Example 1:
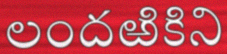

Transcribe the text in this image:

లందఱికిని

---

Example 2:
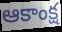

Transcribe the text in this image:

ఆకాంక్ష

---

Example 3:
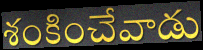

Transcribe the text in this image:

శంకించేవాడు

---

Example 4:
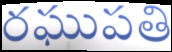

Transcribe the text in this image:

రఘుపతి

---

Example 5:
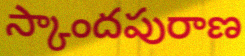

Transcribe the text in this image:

స్కాందపురాణ